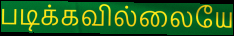
படிக்கவில்லையே